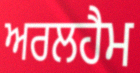
ਅਰਲਹੈਮ